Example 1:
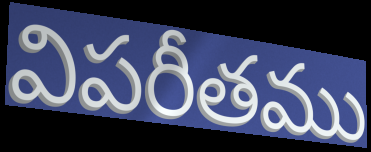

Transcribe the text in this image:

విపరీతము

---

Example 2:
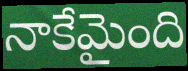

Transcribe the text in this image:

నాకేమైంది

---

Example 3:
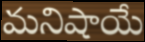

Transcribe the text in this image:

మనిషాయే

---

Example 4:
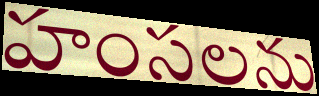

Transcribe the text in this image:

హంసలను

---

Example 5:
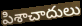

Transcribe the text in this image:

పిశాచాదులు